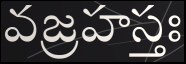
వజ్రహస్తః